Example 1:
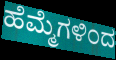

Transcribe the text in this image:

ಹೆಮ್ಮೆಗಳಿಂದ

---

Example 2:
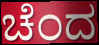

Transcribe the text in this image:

ಚೆಂದ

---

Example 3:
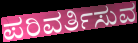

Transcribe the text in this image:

ಪರಿವರ್ತಿಸುವ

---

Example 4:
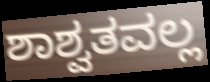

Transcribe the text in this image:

ಶಾಶ್ವತವಲ್ಲ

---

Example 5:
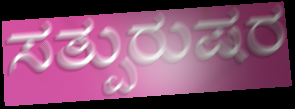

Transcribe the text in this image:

ಸತ್ಪುರುಷರ